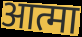
आत्मा